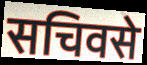
सचिवसे